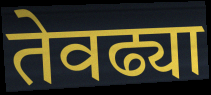
तेवढ्या